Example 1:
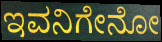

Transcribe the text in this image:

ಇವನಿಗೇನೋ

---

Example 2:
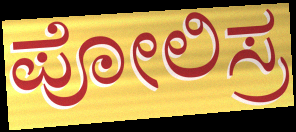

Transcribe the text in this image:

ಪೋಲಿಸ್ರ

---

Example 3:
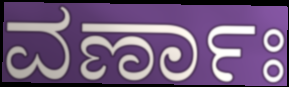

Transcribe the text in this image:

ವರ್ಣಾಃ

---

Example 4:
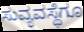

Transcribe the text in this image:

ಸುವ್ಯವಸ್ಥೆಗೂ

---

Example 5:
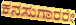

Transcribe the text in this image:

ಕನಸುಗಾರರೇ